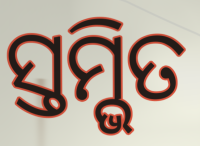
ସ୍ତମ୍ଭିତ